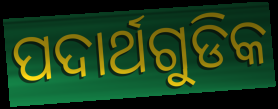
ପଦାର୍ଥଗୁଡିକ